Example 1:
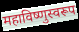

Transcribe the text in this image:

महाविष्णुस्वरूप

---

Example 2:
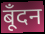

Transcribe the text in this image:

बूँदन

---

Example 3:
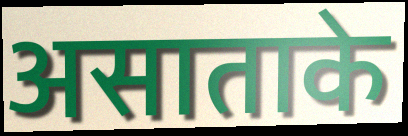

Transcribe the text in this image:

असाताके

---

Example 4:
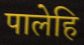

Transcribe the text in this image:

पालेहि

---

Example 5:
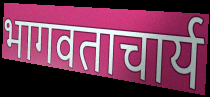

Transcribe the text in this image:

भागवताचार्य